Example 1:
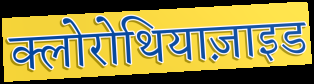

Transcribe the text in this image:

क्लोरोथियाज़ाइड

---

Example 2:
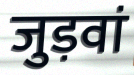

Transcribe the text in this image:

जुड़वां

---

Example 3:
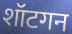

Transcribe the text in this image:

शॉटगन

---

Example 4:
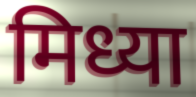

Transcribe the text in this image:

मिध्या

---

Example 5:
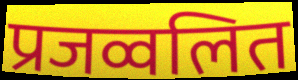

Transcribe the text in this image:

प्रजव्वलित